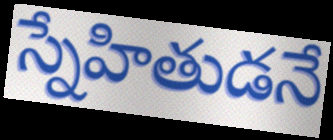
స్నేహితుడనే